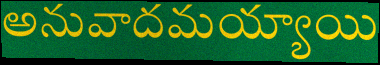
అనువాదమయ్యాయి